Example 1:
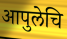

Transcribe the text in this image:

आपुलेचि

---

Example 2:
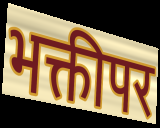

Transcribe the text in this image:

भक्तीपर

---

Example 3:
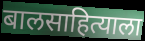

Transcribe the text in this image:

बालसाहित्याला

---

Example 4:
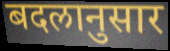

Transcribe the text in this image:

बदलानुसार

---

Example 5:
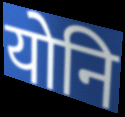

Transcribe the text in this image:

योनि